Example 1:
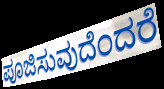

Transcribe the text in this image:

ಪೂಜಿಸುವುದೆಂದರೆ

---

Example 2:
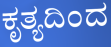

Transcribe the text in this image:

ಕೃತ್ಯದಿಂದ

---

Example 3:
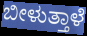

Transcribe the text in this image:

ಬೀಳುತ್ತಾಳೆ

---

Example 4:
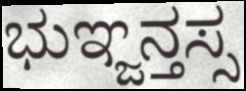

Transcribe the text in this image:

ಭುಞ್ಜನ್ತಸ್ಸ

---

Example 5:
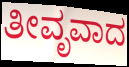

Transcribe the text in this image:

ತೀವೃವಾದ